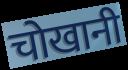
चोखानी